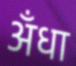
अँधा